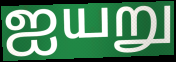
ஐயறு